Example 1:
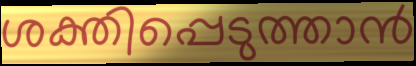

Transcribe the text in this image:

ശക്തിപ്പെടുത്താൻ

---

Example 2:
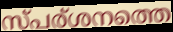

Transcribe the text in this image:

സ്പര്ശനത്തെ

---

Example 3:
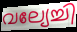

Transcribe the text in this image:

വല്യേച്ചി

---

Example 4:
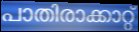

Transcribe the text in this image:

പാതിരാക്കാറ്റ്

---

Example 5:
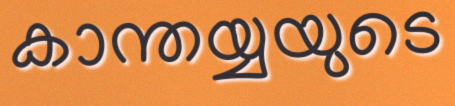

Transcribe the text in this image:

കാന്തയ്യയുടെ